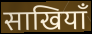
साखियाँ